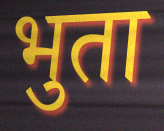
भुता